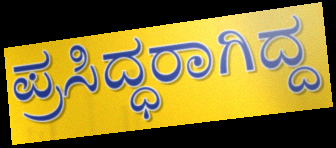
ಪ್ರಸಿದ್ಧರಾಗಿದ್ದ